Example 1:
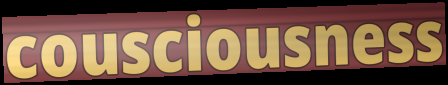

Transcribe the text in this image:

cousciousness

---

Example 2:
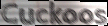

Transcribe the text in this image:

Cuckoos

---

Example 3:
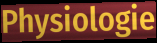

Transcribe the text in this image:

Physiologie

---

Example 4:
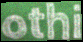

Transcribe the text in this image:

othi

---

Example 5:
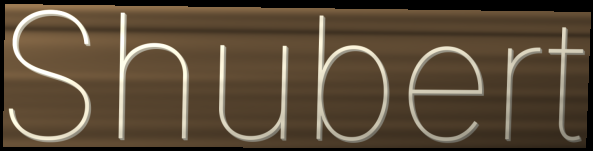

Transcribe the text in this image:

Shubert